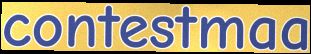
contestmaa